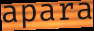
apara